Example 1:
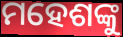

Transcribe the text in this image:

ମହେଶଙ୍କୁ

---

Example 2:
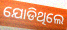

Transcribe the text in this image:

ଯୋଡିଥିଲେ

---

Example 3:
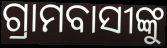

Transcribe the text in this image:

ଗ୍ରାମବାସୀଙ୍କୁ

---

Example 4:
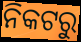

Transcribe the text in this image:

ନିକଟରୁ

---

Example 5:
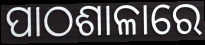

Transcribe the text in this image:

ପାଠଶାଳାରେ